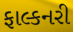
ફાલ્કનરી